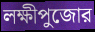
লক্ষীপুজোর